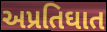
અપ્રતિઘાત